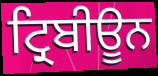
ਟ੍ਰਿਬੀਊਨ